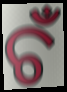
ଚଁ